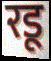
रडू